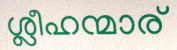
ശ്ലീഹന്മാര്